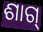
ଶାଗ୍